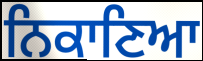
ਨਿਕਾਣਿਆ